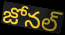
జోనల్